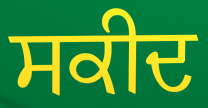
ਸਕੀਦ